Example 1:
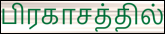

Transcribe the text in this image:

பிரகாசத்தில்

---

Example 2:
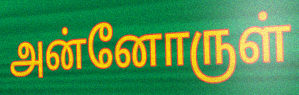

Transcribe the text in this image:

அன்னோருள்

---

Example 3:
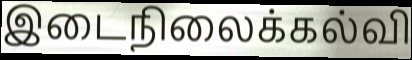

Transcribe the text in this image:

இடைநிலைக்கல்வி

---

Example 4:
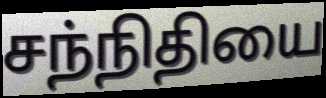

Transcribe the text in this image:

சந்நிதியை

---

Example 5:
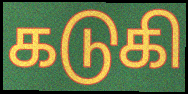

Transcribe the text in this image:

கடுகி